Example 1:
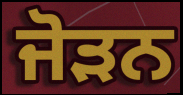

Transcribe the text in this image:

ਜੋੜਨ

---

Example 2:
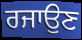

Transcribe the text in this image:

ਰਜਾਉਣ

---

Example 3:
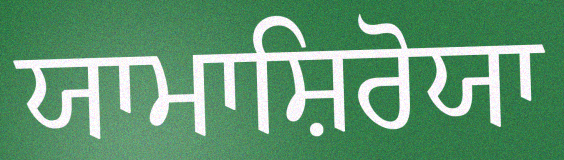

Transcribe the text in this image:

ਯਾਮਾਸ਼ਿਰੋਯਾ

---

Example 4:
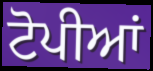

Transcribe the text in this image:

ਟੋਪੀਆਂ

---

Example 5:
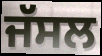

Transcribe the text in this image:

ਜੱਸਲ